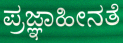
ಪ್ರಜ್ಞಾಹೀನತೆ